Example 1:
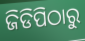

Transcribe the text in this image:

ଜିଡିପିଠାରୁ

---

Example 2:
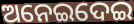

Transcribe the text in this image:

ଅନେଇଦେଇ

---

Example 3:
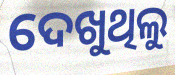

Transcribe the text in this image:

ଦେଖୁଥିଲୁ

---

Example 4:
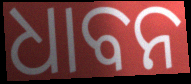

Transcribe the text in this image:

ଧାବନ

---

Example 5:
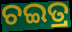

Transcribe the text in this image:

ଚଇତ୍ର